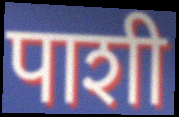
पाशी